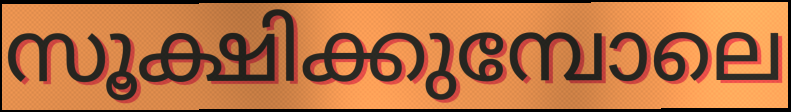
സൂക്ഷിക്കുമ്പോലെ